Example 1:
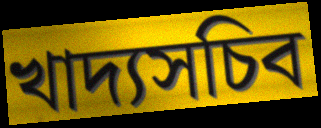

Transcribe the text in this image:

খাদ্যসচিব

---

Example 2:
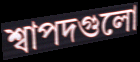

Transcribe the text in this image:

শ্বাপদগুলো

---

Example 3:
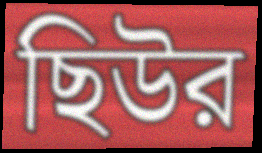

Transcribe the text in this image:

ছিউর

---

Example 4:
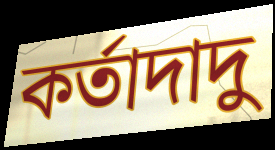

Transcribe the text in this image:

কর্তাদাদু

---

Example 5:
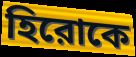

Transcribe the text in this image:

হিরোকে